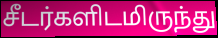
சீடர்களிடமிருந்து